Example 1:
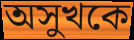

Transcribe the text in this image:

অসুখকে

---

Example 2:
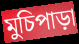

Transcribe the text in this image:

মুচিপাড়া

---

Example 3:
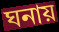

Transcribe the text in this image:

ঘনায়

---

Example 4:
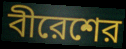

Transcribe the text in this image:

বীরেশের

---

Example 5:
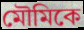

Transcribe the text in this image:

মৌমিকে